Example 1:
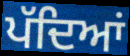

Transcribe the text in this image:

ਪੱਦਿਆਂ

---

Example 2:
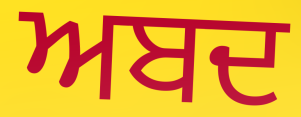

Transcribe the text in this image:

ਅਬਦ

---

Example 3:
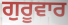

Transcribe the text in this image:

ਗੁਰੂਵਾਰ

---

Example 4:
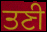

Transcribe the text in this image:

ਤਣੀ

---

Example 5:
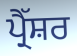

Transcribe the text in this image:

ਪ੍ਰੈੱਸ਼ਰ